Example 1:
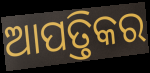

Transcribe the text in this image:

ଆପତ୍ତିକର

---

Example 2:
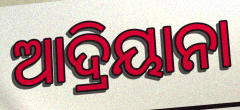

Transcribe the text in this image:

ଆଦ୍ରିୟାନା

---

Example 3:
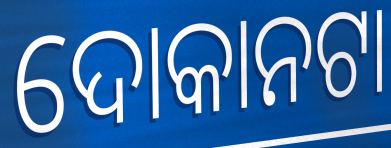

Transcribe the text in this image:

ଦୋକାନଟା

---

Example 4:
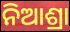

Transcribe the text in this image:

ନିଆଶ୍ରା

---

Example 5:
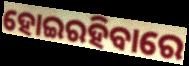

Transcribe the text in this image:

ହୋଇରହିବାରେ